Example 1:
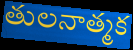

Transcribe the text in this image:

తులనాత్మక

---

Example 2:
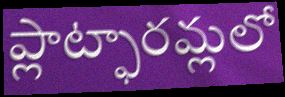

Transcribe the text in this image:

ప్లాట్ఫారమ్లలో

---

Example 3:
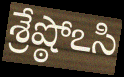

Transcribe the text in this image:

శ్రేష్ఠోఽసి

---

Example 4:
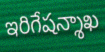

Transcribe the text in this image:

ఇరిగేషన్శాఖ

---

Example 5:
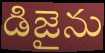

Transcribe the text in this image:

డిజైను